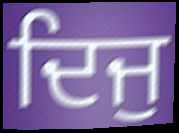
ਦਿਜੁ